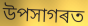
উপসাগৰত